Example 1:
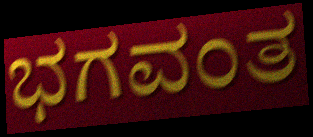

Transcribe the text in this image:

ಭಗವಂತ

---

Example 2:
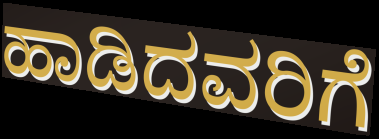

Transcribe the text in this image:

ಹಾಡಿದವರಿಗೆ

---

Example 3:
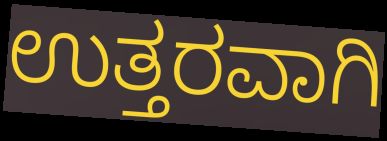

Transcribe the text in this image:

ಉತ್ತರವಾಗಿ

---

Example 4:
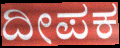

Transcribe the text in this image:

ದೀಪಕ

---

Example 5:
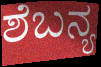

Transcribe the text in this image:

ಶೆಬನ್ಯ